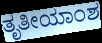
ತೃತೀಯಾಂಶ